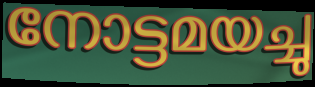
നോട്ടമയച്ചു